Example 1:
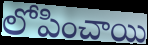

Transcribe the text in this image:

లోపించాయి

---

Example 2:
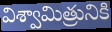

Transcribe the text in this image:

విశ్వామిత్రునికి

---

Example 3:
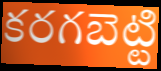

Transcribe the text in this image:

కరగబెట్టి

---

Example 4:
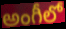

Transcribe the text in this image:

అంగీలో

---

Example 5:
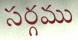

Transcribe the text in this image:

సర్గము